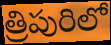
త్రిపురిలో